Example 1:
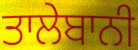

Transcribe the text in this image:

ਤਾਲੇਬਾਨੀ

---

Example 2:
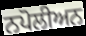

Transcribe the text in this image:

ਨਪੋਲੀਅਨ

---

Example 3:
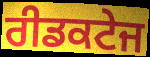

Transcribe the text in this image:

ਰੀਡਕਟੇਜ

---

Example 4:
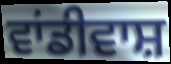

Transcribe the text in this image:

ਵਾਂਡੀਵਾਸ਼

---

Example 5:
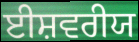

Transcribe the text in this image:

ਈਸ਼ਵਰੀਯ